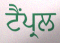
ਟੈਂਪ੍ਰਲ